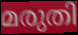
മരുതി